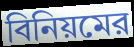
বিনিয়মের